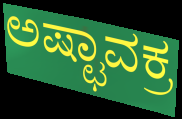
ಅಷ್ಟಾವಕ್ರ